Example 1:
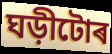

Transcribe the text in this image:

ঘড়ীটোৰ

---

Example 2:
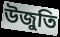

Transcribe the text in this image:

উজুতি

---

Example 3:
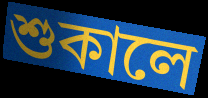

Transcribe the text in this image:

শুকালে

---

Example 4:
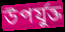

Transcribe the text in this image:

উপৰ্যুক্ত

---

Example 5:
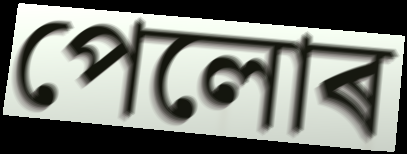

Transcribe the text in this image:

পেলোৰ